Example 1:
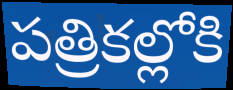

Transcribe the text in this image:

పత్రికల్లోకి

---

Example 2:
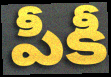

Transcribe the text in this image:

పీకీ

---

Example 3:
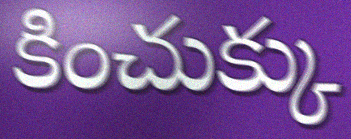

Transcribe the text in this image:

కించుక్కు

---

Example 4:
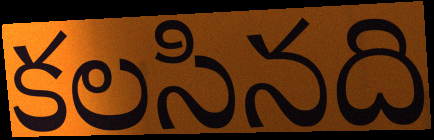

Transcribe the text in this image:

కలసినది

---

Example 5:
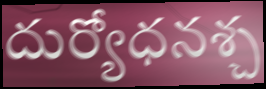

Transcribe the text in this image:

దుర్యోధనశ్చ